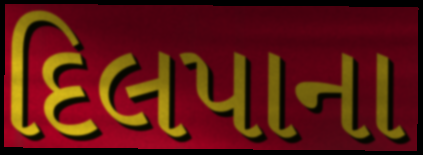
દિલપાના